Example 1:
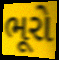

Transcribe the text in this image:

ભૂરો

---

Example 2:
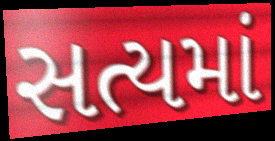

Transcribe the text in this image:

સત્યમાં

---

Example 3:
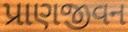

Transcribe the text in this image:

પ્રાણજીવન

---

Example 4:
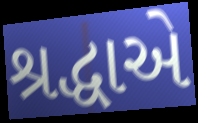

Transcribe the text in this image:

શ્રદ્ધાએ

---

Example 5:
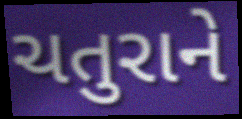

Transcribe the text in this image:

ચતુરાને